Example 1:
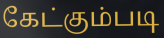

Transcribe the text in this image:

கேட்கும்படி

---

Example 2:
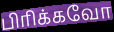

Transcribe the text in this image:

பிரிக்கவோ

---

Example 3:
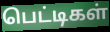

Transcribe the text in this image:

பெட்டிகள்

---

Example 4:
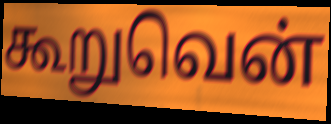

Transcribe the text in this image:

கூறுவென்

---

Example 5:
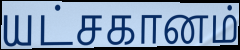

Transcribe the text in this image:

யட்சகானம்